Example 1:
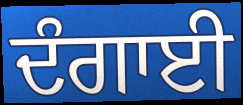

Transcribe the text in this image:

ਦੰਗਾਈ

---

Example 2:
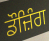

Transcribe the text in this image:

ਡੌਜ਼ਿੰਗ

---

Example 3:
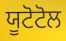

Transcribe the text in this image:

ਯੂਟੋਟੋਲ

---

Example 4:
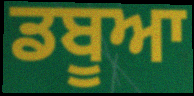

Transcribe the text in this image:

ਡਬੂਆ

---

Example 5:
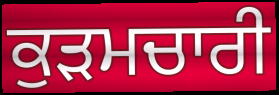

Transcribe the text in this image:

ਕੁੜਮਚਾਰੀ